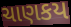
ચાણકય